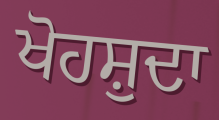
ਖੋਹਸ਼ੁਦਾ